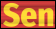
Sen